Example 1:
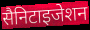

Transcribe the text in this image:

सैनिटाइजेशन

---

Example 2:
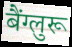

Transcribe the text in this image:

बैंग्लुरू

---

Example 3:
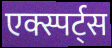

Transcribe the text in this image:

एक्स्पर्ट्स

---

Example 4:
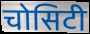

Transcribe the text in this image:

चोसिटी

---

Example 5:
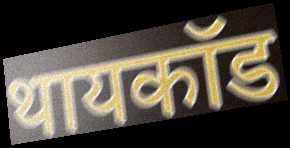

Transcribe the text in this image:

थायकॉड